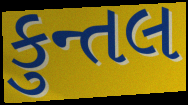
કુન્તલ